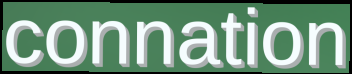
connation